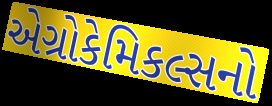
એગ્રોકેમિકલ્સનો